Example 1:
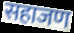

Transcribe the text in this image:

सहाजण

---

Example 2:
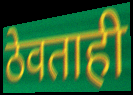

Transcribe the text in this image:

ठेवताही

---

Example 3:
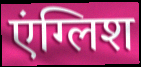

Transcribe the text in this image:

एंग्लिश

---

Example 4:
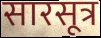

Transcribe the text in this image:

सारसूत्र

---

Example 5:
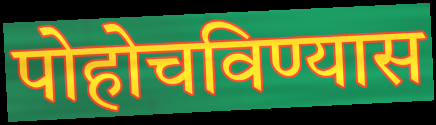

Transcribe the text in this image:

पोहोचविण्यास